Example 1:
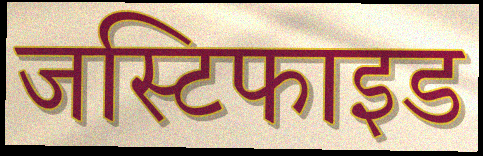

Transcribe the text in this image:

जस्टिफाइड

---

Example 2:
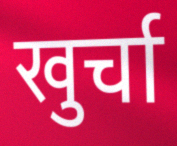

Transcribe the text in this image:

खुर्चा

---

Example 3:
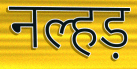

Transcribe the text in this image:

नल्हड़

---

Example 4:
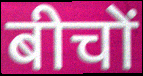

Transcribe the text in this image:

बीचों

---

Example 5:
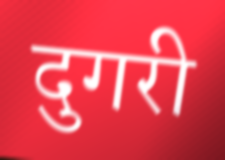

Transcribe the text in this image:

दुगरी